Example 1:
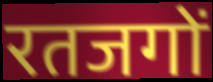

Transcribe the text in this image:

रतजगों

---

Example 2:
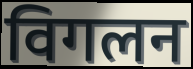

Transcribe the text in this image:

विगलन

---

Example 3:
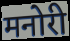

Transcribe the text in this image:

मनोरी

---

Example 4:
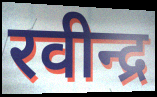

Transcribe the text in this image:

रवीन्द्र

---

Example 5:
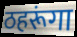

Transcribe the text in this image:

ठहरूंगा